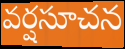
వర్షసూచన